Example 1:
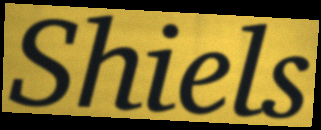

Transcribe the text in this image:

Shiels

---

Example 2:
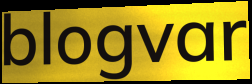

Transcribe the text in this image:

blogvar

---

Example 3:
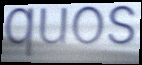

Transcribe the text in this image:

quos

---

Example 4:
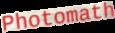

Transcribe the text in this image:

Photomath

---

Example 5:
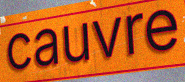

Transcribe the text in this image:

cauvre